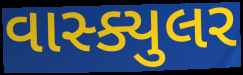
વાસ્ક્યુલર